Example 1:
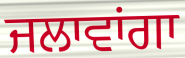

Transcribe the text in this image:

ਜਲਾਵਾਂਗਾ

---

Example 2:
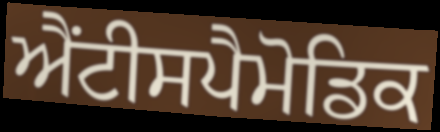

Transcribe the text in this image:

ਐਂਟੀਸਪੈਮੋਡਿਕ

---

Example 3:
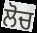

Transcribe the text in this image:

ਲੋਚ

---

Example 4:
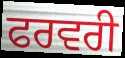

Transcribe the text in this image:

ਫਰਵਰੀ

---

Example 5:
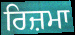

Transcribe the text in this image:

ਰਿਜ਼ਮਾ